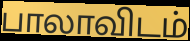
பாலாவிடம்